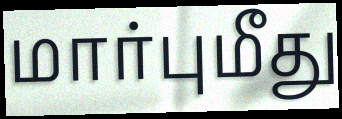
மார்புமீது